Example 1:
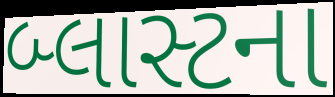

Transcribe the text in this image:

બ્લાસ્ટના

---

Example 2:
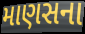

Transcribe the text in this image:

માણસના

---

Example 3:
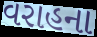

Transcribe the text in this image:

વરાહના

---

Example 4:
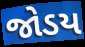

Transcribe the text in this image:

જોડય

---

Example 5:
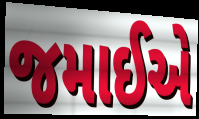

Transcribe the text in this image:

જમાઈએ